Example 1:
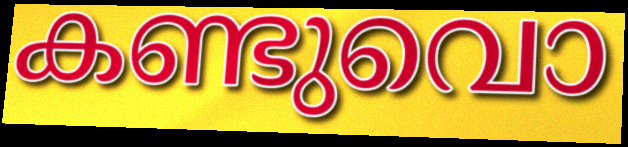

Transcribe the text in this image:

കണ്ടുവൊ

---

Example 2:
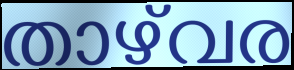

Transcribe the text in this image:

താഴ്‌വര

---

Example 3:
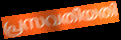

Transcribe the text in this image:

പ്രസവതീയതി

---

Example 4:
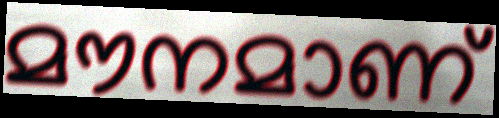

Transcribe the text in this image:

മൗനമാണ്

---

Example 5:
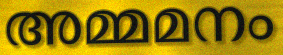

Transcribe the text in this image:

അമ്മമനം